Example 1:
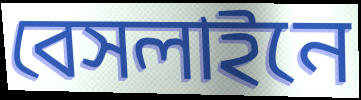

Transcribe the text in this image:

বেসলাইনে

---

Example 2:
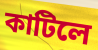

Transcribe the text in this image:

কাটিলে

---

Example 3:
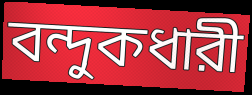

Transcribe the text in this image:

বন্দুকধারী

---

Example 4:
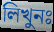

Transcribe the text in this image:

লিখুনঃ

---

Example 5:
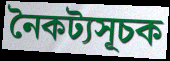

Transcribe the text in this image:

নৈকট্যসূচক